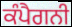
ਕੰਪੈਗਨੀ